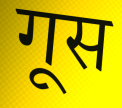
गूस